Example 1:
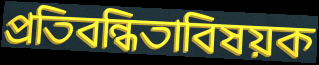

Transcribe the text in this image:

প্রতিবন্ধিতাবিষয়ক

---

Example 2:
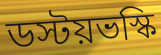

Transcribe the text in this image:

ডস্টয়ভস্কি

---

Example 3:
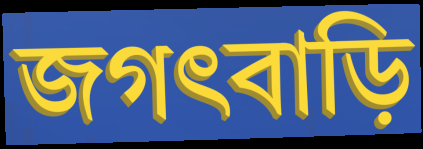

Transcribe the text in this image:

জগৎবাড়ি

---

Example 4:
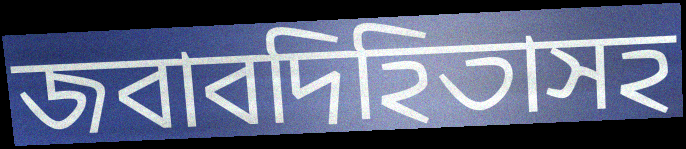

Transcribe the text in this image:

জবাবদিহিতাসহ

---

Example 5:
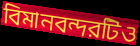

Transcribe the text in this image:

বিমানবন্দরটিও